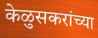
केळुसकरांच्या